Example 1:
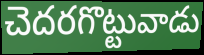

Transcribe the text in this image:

చెదరగొట్టువాడు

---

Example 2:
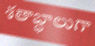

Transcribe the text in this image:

శతాబ్ధాలుగా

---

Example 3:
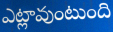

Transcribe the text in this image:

ఎట్లావుంటుంది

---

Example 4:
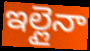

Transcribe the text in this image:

ఇల్లైనా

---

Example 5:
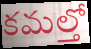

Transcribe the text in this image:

కమల్తో